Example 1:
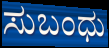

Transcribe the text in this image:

ಸುಬಂಧು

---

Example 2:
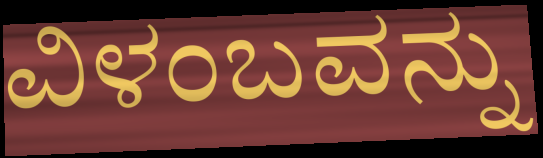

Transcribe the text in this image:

ವಿಳಂಬವನ್ನು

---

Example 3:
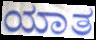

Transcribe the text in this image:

ಯಾತ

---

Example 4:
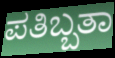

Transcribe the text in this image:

ಪತಿಬ್ಬತಾ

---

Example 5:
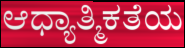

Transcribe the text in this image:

ಆಧ್ಯಾತ್ಮಿಕತೆಯ